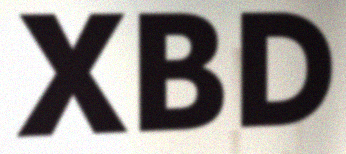
XBD